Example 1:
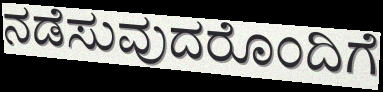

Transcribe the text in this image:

ನಡೆಸುವುದರೊಂದಿಗೆ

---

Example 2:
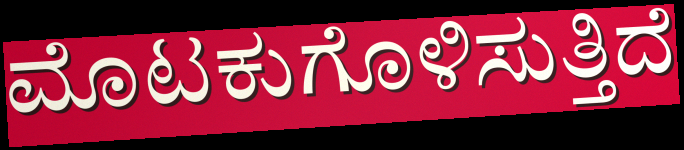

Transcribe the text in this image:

ಮೊಟಕುಗೊಳಿಸುತ್ತಿದೆ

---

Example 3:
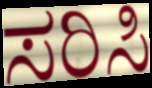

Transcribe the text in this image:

ಸರಿಸಿ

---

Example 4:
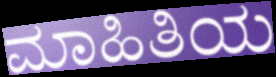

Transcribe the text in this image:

ಮಾಹಿತಿಯ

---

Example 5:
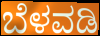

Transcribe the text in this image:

ಬೆಳವಡಿ